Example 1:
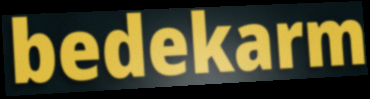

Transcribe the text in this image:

bedekarm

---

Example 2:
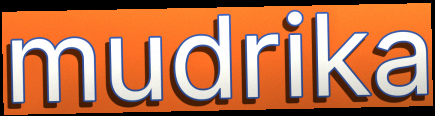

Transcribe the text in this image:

mudrika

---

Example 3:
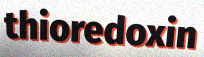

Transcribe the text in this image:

thioredoxin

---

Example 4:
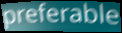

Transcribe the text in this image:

preferable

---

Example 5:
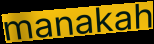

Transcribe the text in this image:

manakah